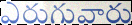
ఎరుగువారు